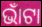
ଭାଁଟା